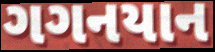
ગગનયાન